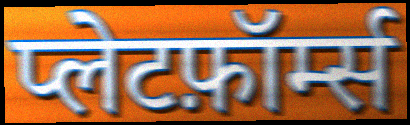
प्लेटफ़ॉर्म्स